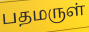
பதமருள்